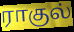
ராகுல்